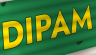
DIPAM